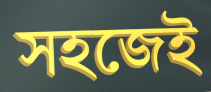
সহজেই